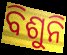
ବିଶୁନି